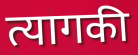
त्यागकी